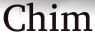
Chim